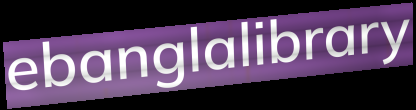
ebanglalibrary